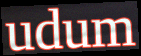
udum